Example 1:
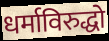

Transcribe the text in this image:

धर्माविरुद्धो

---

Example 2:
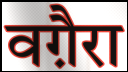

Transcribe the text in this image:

वग़ैरा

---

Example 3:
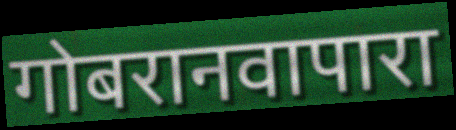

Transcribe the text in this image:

गोबरानवापारा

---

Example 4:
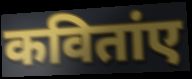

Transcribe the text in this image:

कवितांए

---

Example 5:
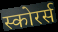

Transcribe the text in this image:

स्कोरर्स